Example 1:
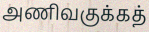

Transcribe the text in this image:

அணிவகுக்கத்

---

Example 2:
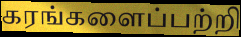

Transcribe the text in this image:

கரங்களைப்பற்றி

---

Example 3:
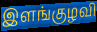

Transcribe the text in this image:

இளங்குழவி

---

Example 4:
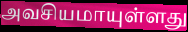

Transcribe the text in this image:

அவசியமாயுள்ளது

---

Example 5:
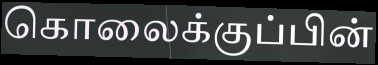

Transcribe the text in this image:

கொலைக்குப்பின்